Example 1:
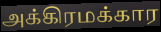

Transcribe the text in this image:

அக்கிரமக்கார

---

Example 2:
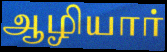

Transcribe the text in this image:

ஆழியார்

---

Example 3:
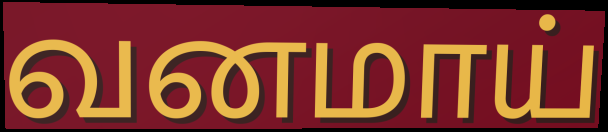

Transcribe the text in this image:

வனமாய்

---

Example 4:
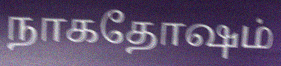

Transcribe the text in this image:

நாகதோஷம்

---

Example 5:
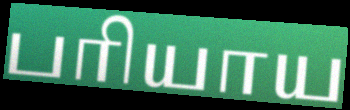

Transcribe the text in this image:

பரியாய